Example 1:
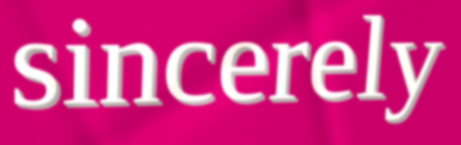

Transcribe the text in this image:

sincerely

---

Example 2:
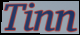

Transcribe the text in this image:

Tinn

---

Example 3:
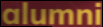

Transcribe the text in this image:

alumni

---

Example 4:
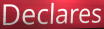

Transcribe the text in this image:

Declares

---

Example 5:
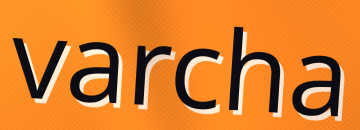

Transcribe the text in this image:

varcha